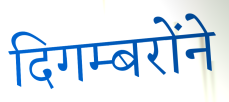
दिगम्बरोंने